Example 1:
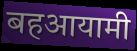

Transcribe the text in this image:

बहआयामी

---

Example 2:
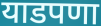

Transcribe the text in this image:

याडपणा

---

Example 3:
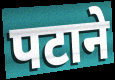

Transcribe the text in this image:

पटाने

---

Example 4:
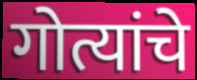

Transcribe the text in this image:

गोत्यांचे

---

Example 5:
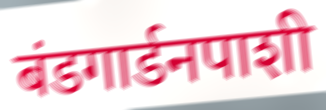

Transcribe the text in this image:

बंडगार्डनपाशी